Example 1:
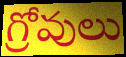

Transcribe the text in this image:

గ్రోవులు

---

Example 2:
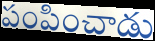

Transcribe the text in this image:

పంపించాడు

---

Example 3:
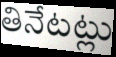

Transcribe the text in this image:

తినేటట్లు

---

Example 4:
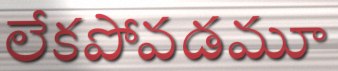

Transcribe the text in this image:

లేకపోవడమూ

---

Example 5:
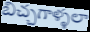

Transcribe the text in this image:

బిచ్చగాళ్ళలా